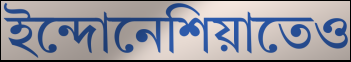
ইন্দোনেশিয়াতেও